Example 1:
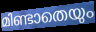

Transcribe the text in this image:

മിണ്ടാതെയും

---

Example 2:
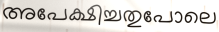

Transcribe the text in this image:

അപേക്ഷിച്ചതുപോലെ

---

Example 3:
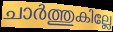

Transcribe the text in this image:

ചാർത്തുകില്ലേ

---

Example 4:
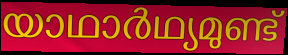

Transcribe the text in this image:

യാഥാർഥ്യമുണ്ട്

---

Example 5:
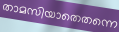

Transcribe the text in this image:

താമസിയാതെതന്നെ